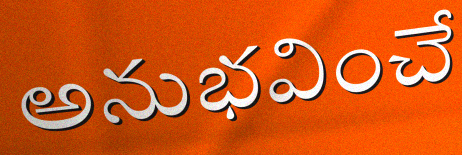
అనుభవించే